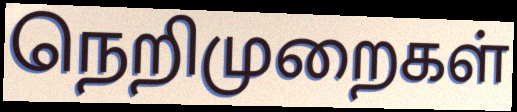
நெறிமுறைகள்